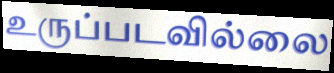
உருப்படவில்லை